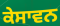
ਕੇਸਾਵਨ